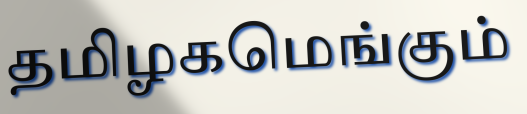
தமிழகமெங்கும்